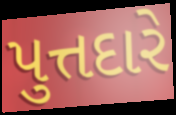
પુત્તદારે